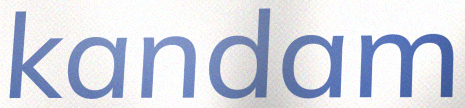
kandam